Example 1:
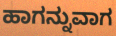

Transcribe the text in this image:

ಹಾಗನ್ನುವಾಗ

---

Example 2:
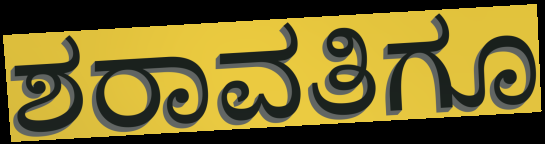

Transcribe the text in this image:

ಶರಾವತಿಗೂ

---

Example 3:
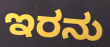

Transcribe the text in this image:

ಇರನು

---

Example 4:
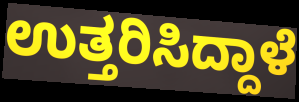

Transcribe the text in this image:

ಉತ್ತರಿಸಿದ್ದಾಳೆ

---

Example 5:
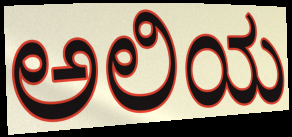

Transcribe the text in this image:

ಅಲಿಯ